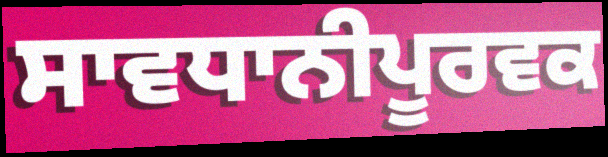
ਸਾਵਧਾਨੀਪੂਰਵਕ